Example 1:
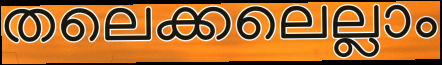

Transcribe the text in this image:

തലെക്കലെല്ലാം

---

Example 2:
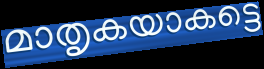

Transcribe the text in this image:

മാതൃകയാകട്ടെ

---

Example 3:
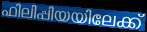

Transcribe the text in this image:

ഫിലിപ്പിയയിലേക്ക്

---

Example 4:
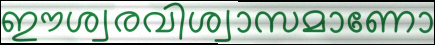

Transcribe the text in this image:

ഈശ്വരവിശ്വാസമാണോ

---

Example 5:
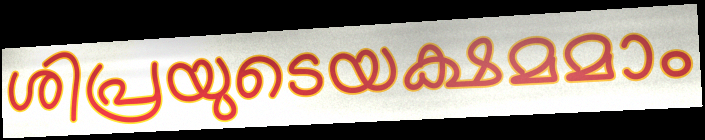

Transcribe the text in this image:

ശിപ്രയുടെയക്ഷമമാം